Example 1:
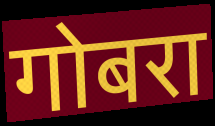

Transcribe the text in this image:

गोबरा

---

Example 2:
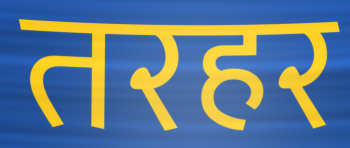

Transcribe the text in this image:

तरहर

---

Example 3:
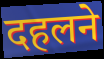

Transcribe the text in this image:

दहलने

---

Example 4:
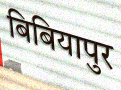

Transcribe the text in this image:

बिबियापुर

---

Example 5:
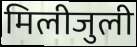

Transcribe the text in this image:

मिलीजुली